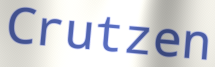
Crutzen